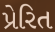
પ્રેરિત